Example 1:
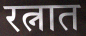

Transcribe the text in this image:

रत्नात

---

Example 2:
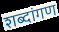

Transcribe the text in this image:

शब्दांगण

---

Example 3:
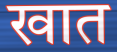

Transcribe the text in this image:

खात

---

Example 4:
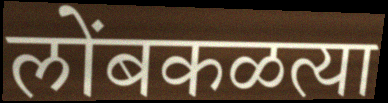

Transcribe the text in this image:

लोंबकळत्या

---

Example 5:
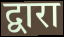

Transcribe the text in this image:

द्वारा